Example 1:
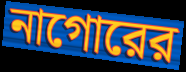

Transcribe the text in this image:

নাগোরের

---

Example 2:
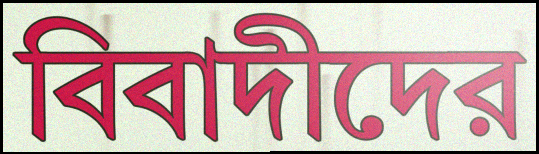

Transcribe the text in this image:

বিবাদীদের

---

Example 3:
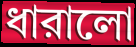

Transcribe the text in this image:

ধারালো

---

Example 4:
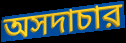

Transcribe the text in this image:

অসদাচার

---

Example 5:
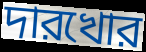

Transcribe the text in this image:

দারখোর